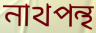
নাথপন্থ